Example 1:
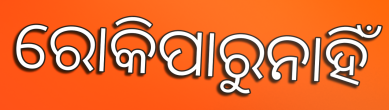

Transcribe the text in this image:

ରୋକିପାରୁନାହିଁ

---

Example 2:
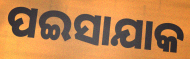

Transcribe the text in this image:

ପଇସାଯାକ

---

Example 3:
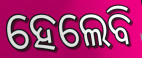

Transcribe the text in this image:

ହେଲେବି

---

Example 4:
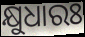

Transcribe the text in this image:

କ୍ଷୁଧାରଃ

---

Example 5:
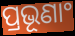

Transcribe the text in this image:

ପ୍ରଭୂଣାଂ